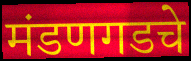
मंडणगडचे